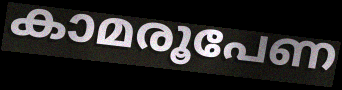
കാമരൂപേണ